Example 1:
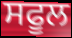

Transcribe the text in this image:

ਸਫੂਲ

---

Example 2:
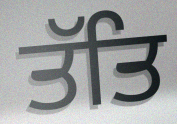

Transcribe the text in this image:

ਤੱਤਿ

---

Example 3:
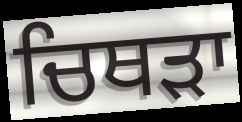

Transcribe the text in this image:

ਚਿਥੜਾ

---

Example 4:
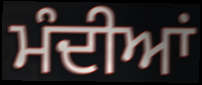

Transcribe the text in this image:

ਮੰਦੀਆਂ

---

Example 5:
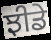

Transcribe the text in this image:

ਝੀਡੇ